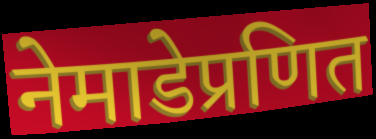
नेमाडेप्रणित